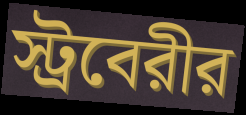
স্ট্রবেরীর